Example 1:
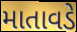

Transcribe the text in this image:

માતાવડે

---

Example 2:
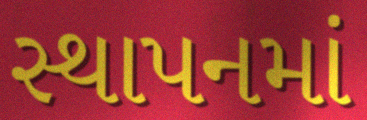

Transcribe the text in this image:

સ્થાપનમાં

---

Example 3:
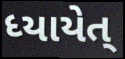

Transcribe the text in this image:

ધ્યાયેત્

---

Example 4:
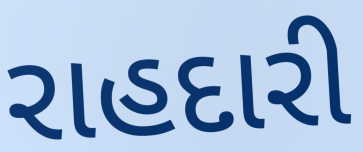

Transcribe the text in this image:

રાહદારી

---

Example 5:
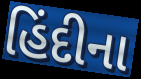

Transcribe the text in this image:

હિંદીના